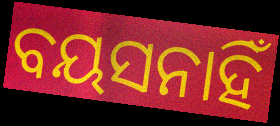
ବୟସନାହିଁ